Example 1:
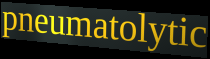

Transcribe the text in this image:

pneumatolytic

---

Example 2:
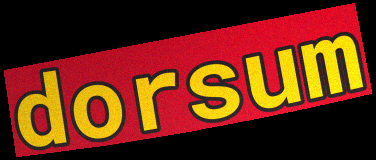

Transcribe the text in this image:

dorsum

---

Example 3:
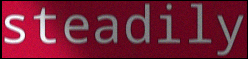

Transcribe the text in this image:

steadily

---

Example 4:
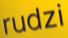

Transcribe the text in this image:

rudzi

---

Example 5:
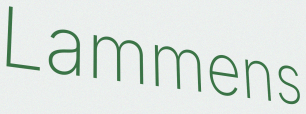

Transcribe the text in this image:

Lammens